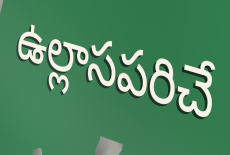
ఉల్లాసపరిచే